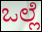
ಒಲ್ಲೆ